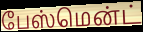
பேஸ்மென்ட்